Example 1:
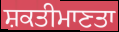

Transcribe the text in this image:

ਸ਼ਕਤੀਮਾਣਤਾ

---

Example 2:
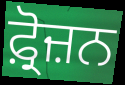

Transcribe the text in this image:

ਫ਼੍ਰੋਜ਼ਨ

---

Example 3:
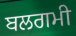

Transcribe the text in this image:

ਬਲਗਮੀ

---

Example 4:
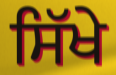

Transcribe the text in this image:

ਸਿੱਖੇ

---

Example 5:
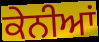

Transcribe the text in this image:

ਕੇਨੀਆਂ